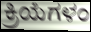
ಕ್ರಿಯೆಗಳಂ